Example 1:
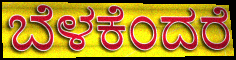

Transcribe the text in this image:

ಬೆಳಕೆಂದರೆ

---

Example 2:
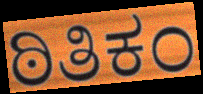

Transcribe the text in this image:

ಠಿತಿಕಂ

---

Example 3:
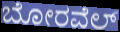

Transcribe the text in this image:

ಬೋರವೆಲ್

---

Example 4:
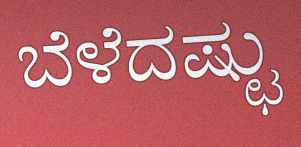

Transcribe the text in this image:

ಬೆಳೆದಷ್ಟು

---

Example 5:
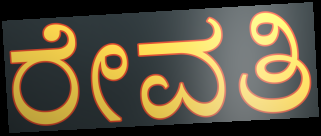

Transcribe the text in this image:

ರೇವತಿ